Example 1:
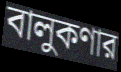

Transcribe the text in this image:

বালুকণার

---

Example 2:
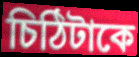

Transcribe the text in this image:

চিঠিটাকে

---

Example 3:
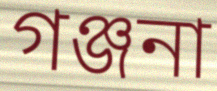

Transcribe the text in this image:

গঞ্জনা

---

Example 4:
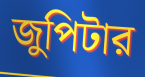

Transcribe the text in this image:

জুপিটার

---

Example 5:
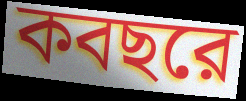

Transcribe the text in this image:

কবছরে